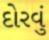
દોરવું